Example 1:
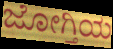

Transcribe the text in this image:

ಜೋಗ್ತಿಯ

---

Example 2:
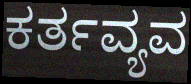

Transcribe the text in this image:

ಕರ್ತವ್ಯವ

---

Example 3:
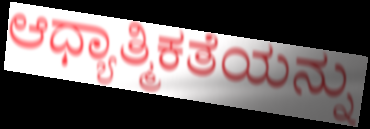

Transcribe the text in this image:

ಆಧ್ಯಾತ್ಮಿಕತೆಯನ್ನು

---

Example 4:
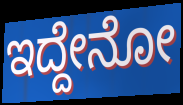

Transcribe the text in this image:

ಇದ್ದೇನೋ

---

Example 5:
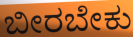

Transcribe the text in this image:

ಬೀರಬೇಕು